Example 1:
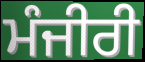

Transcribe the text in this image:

ਮੰਜੀਰੀ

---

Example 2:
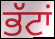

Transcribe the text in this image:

ਭੱਟਾਂ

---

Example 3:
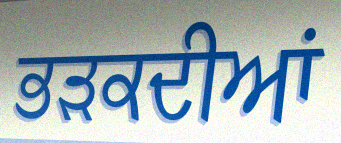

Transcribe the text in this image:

ਭੜਕਦੀਆਂ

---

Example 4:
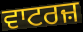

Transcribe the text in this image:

ਵਾਟਰਜ਼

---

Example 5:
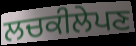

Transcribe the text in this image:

ਲਚਕੀਲੇਪਣ